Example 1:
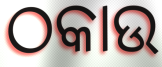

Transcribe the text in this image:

ଠକାଉ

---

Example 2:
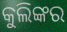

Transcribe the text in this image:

କୁଲିଙ୍କର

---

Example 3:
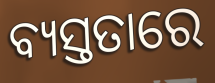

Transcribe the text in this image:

ବ୍ୟସ୍ତତାରେ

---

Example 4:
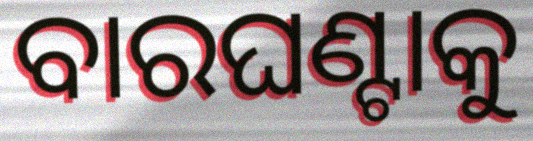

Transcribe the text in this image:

ବାରଘଣ୍ଟାକୁ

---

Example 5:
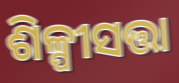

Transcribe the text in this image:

ଶିଳ୍ପୀସତ୍ତା